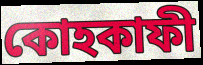
কোহকাফী